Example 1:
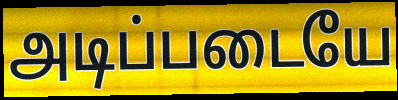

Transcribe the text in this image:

அடிப்படையே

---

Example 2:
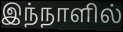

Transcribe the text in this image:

இந்நாளில்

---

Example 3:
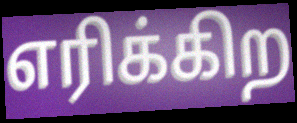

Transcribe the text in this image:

எரிக்கிற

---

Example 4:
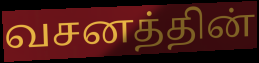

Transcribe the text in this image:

வசனத்தின்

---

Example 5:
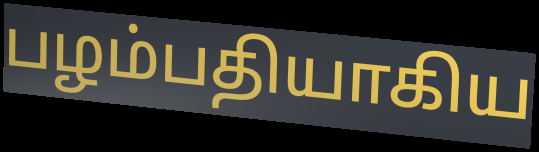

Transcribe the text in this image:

பழம்பதியாகிய